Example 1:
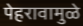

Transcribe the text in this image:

पेहरावामुळे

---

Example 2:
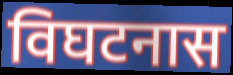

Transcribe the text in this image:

विघटनास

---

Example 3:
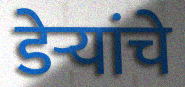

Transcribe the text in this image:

डेर्‍यांचे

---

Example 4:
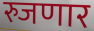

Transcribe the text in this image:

रुजणार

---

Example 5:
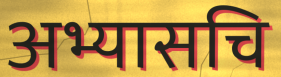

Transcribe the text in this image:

अभ्यासचि